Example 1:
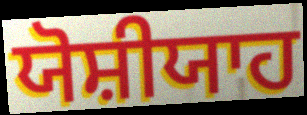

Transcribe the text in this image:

ਯੋਸ਼ੀਯਾਹ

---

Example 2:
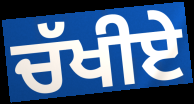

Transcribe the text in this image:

ਚੱਖੀਏ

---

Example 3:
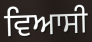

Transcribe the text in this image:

ਵਿਆਸੀ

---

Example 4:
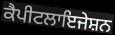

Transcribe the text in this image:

ਕੈਪੀਟਲਾਇਜੇਸ਼ਨ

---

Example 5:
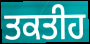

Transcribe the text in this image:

ਤਕਤੀਹ